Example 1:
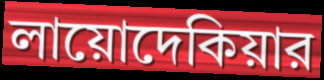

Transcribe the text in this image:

লায়োদেকিয়ার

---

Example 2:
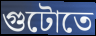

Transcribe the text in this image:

গুটোতে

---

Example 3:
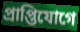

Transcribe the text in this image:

প্রাপ্তিযোগে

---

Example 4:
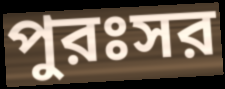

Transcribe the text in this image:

পুরঃসর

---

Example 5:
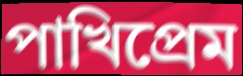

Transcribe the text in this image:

পাখিপ্রেম